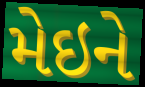
મેઇને